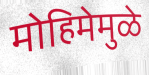
मोहिमेमुळे